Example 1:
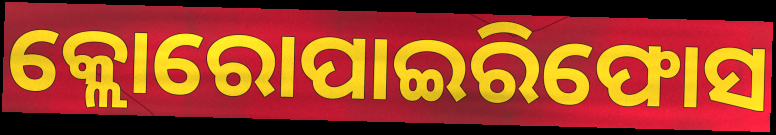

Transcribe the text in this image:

କ୍ଲୋରୋପାଇରିଫୋସ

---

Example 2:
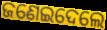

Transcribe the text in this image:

ଜଣେଇଦେଲେ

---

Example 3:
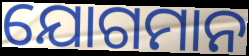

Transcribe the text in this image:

ଯୋଗମାନ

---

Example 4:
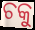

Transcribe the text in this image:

ଚକୁ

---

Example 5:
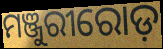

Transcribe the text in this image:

ମଞ୍ଜୁରୀରୋଡ଼